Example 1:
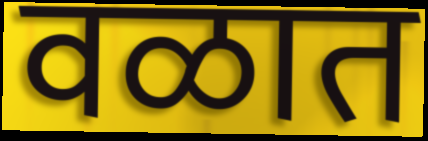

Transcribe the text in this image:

वळात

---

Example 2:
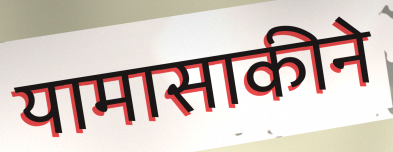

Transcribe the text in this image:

यामासाकीने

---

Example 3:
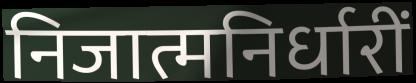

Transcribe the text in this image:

निजात्मनिर्धारीं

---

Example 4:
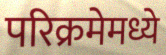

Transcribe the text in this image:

परिक्रमेमध्ये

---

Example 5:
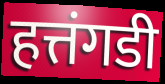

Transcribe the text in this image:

हत्तंगडी